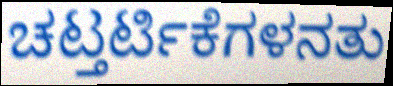
ಚಟ್ತರ್ಟಿಕೆಗಳನತು